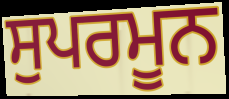
ਸੁਪਰਮੂਨ